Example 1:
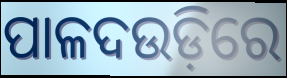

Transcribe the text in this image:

ପାଳଦଉଡ଼ିରେ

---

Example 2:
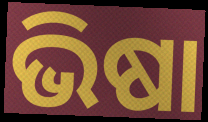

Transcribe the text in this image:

ଭିଷା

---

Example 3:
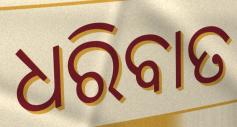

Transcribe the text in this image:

ଧରିବାତ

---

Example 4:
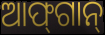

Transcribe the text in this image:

ଆଫ୍‌ଗାନ୍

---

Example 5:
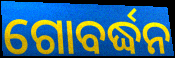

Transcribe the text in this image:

ଗୋବର୍ଦ୍ଧନ